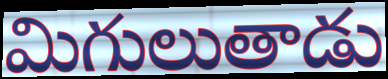
మిగులుతాడు